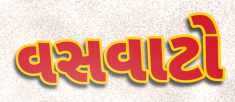
વસવાટો